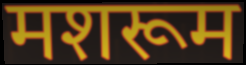
मशरूम